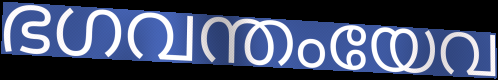
ഭഗവന്തംയേവ